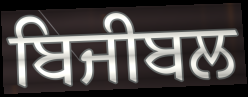
ਬਿਜੀਬਲ